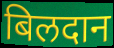
बिलदान